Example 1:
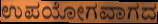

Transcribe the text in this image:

ಉಪಯೋಗವಾಗದ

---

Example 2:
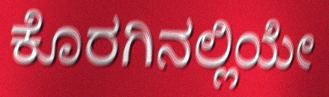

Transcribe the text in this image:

ಕೊರಗಿನಲ್ಲಿಯೇ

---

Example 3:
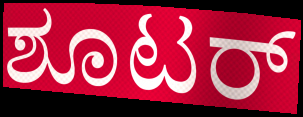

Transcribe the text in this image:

ಶೂಟರ್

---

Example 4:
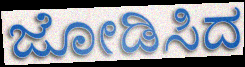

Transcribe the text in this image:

ಜೋಡಿಸಿದ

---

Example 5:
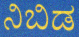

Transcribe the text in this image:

ನಿಬಿಡ